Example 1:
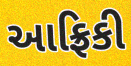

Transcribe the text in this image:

આફ્રિકી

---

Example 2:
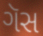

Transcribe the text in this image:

ગૅસ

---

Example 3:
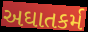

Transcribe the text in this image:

અઘાતકર્મ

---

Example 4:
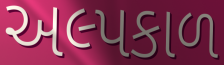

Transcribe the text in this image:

અલ્પકાળ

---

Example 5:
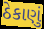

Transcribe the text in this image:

ઠેકાણું